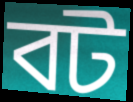
বট